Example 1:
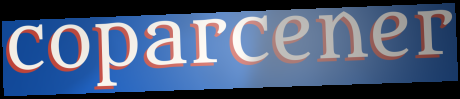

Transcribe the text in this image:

coparcener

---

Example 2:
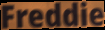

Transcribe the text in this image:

Freddie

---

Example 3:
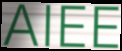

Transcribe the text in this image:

AIEE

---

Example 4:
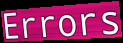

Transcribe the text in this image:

Errors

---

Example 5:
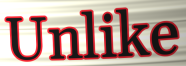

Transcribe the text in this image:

Unlike